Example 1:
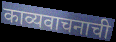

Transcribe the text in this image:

काव्यवाचनाची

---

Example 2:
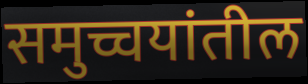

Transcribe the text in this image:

समुच्चयांतील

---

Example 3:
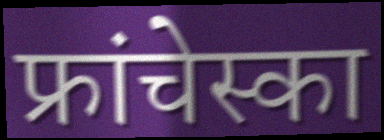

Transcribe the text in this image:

फ्रांचेस्का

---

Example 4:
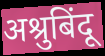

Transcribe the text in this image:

अश्रुबिंदू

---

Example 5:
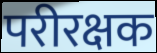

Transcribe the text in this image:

परीरक्षक